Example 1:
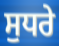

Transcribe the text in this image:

ਸੁਧਰੇ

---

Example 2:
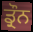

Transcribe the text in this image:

ਡ੍ਰੌਨ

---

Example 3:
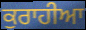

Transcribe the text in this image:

ਕੁਰਾਹੀਆ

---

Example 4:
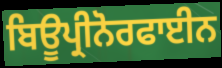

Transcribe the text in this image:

ਬਿਊਪ੍ਰੀਨੋਰਫਾਈਨ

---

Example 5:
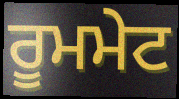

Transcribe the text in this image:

ਰੂਮਮੇਟ